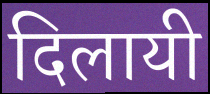
दिलायी